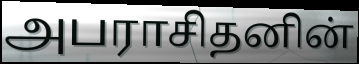
அபராசிதனின்